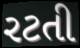
રટતી